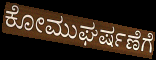
ಕೋಮುಘರ್ಷಣೆಗೆ